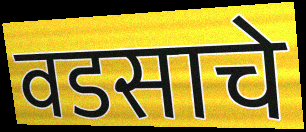
वडसाचे